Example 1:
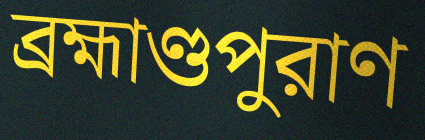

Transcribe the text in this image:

ব্রহ্মাণ্ডপুরাণ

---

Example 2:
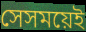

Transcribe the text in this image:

সেসময়েই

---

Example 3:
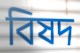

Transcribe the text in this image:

বিষদ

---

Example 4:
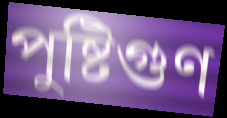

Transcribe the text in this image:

পুষ্টিগুণ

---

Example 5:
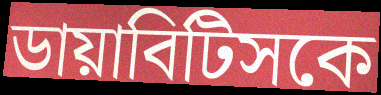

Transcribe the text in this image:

ডায়াবিটিসকে